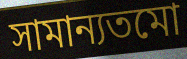
সামান্যতমো